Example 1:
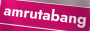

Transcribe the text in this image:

amrutabang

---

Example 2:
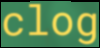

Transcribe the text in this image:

clog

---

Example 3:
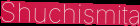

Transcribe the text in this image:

Shuchismita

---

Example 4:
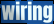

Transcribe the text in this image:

wiring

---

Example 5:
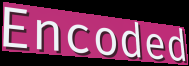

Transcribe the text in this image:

Encoded